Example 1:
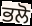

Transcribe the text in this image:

ਭਲੋ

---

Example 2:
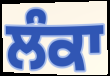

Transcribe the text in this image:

ਲੰਕਾ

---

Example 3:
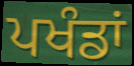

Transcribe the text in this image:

ਪਖੰਡਾਂ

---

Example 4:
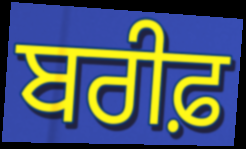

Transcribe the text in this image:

ਬਰੀਫ਼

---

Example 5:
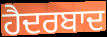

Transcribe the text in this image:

ਹੈਦਰਬਾਦ